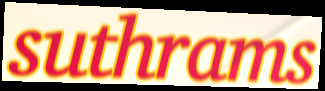
suthrams